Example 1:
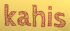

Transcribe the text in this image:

kahis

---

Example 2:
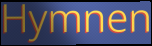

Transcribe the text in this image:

Hymnen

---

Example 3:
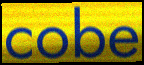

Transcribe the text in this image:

cobe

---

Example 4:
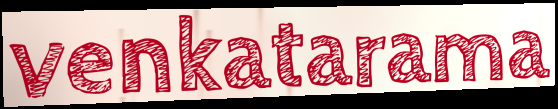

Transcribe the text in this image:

venkatarama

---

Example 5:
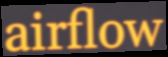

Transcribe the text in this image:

airflow